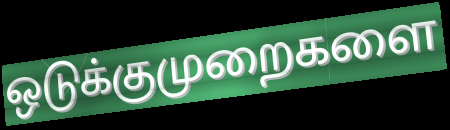
ஒடுக்குமுறைகளை